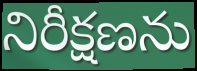
నిరీక్షణను